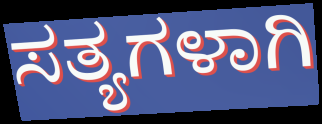
ಸತ್ಯಗಳಾಗಿ